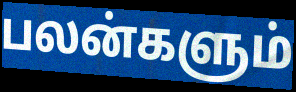
பலன்களும்